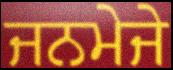
ਜਨਮੇਜੇ